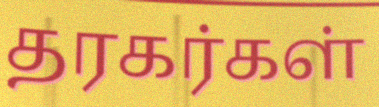
தரகர்கள்